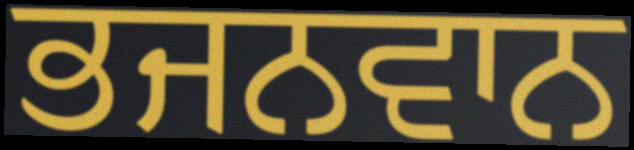
ਭਜਨਵਾਨ